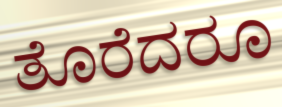
ತೊರೆದರೂ